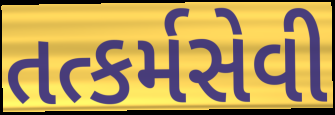
તત્કર્મસેવી